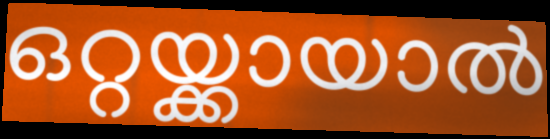
ഒറ്റയ്ക്കായാൽ